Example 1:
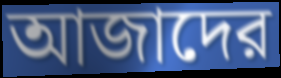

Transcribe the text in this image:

আজাদের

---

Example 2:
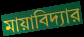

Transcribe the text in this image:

মায়াবিদ্যার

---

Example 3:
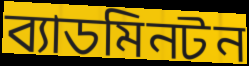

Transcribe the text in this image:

ব্যাডমিনটন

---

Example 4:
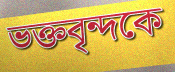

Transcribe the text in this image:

ভক্তবৃন্দকে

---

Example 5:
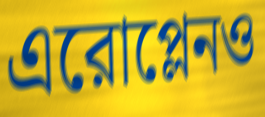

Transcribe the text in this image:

এরোপ্লেনও